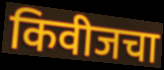
किवीजचा